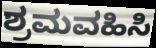
ಶ್ರಮವಹಿಸಿ